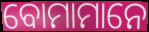
ବୋମାମାନେ